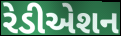
રેડીએશન